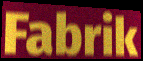
Fabrik